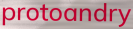
protoandry